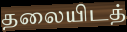
தலையிடத்